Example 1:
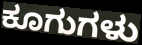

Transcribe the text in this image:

ಕೂಗುಗಳು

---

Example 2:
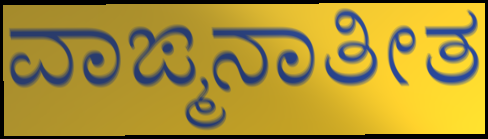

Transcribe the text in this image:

ವಾಙ್ಮನಾತೀತ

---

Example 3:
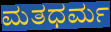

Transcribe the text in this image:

ಮತಧರ್ಮ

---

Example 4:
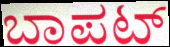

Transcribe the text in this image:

ಬಾಪಟ್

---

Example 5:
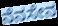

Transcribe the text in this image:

ನೆನಸೇನ